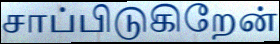
சாப்பிடுகிறேன்